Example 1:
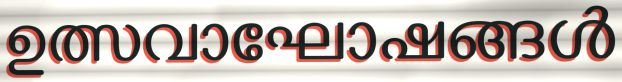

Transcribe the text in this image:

ഉത്സവാഘോഷങ്ങൾ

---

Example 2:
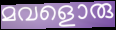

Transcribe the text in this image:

മവളൊരു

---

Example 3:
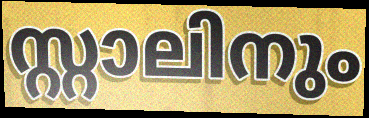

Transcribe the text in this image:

സ്റ്റാലിനും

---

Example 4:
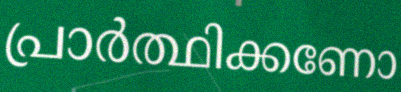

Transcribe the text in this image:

പ്രാർത്ഥിക്കണോ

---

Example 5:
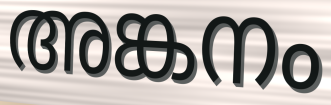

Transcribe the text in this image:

അങ്കനം